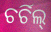
ଚର୍ଚିଲ୍